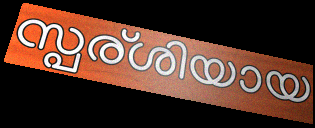
സ്പര്ശിയായ